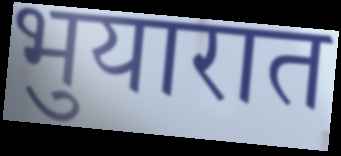
भुयारात